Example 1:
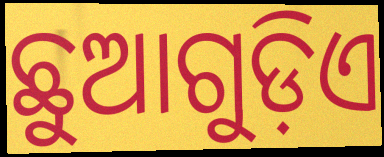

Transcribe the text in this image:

ଛୁଆଗୁଡ଼ିଏ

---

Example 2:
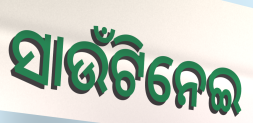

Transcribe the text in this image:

ସାଉଁଟିନେଇ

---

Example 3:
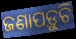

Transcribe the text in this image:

ଜଣାପଡ଼ୁଚି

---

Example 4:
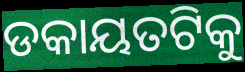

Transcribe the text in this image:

ଡକାୟତଟିକୁ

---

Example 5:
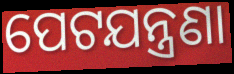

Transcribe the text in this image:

ପେଟଯନ୍ତ୍ରଣା